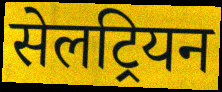
सेलट्रियन